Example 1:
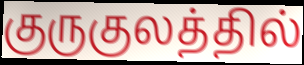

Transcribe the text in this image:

குருகுலத்தில்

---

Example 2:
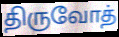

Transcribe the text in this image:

திருவோத்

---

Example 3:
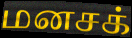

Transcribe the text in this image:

மனசக்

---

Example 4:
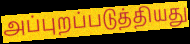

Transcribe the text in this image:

அப்புறப்படுத்தியது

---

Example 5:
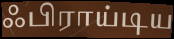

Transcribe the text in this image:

ஃபிராய்டிய